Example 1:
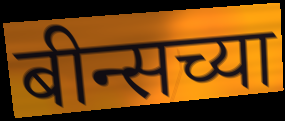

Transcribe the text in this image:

बीन्सच्या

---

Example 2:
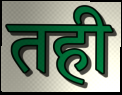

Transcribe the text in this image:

तही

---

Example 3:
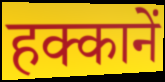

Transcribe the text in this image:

हक्कानें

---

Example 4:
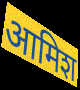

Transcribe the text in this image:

आमिश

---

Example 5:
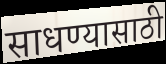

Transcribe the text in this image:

साधण्यासाठी